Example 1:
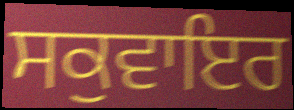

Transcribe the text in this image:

ਸਕੁਵਾਇਰ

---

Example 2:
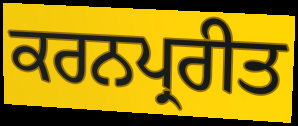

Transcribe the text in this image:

ਕਰਨਪ੍ਰਰੀਤ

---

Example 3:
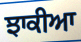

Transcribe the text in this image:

ਝਾਕੀਆ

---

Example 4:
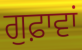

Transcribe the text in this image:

ਗੁਫ਼ਾਵਾਂ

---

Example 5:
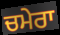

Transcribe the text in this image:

ਚਮੇਰਾ